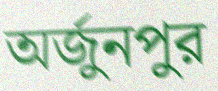
অর্জুনপুর